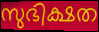
സുഭിക്ഷത